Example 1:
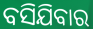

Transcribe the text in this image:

ବସିଯିବାର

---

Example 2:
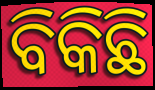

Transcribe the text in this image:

ବିକିଛି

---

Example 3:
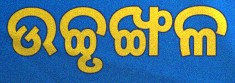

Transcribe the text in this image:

ଉଚ୍ଚୃଙ୍ଖଳ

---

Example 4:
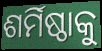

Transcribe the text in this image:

ଶର୍ମିଷ୍ଠାକୁ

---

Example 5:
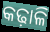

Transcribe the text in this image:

କଢ଼ାଳି